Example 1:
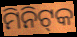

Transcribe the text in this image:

ମିନିଟ୍‌କ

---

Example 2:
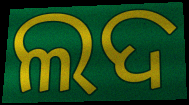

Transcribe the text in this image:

ଲଦ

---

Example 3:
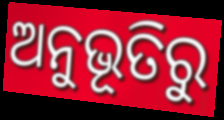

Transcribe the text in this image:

ଅନୁଭୂତିରୁ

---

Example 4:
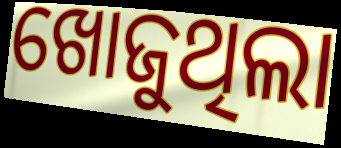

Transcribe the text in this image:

ଖୋଜୁଥିଲା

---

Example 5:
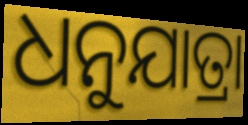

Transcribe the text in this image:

ଧନୁଯାତ୍ରା